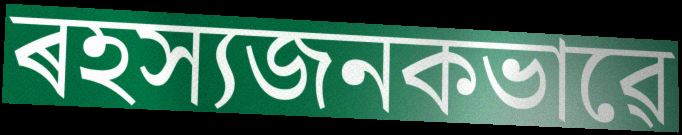
ৰহস্যজনকভাৱে